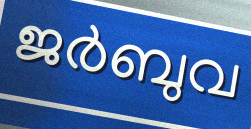
ജർബുവ